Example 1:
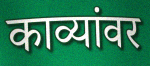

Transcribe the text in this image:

काव्यांवर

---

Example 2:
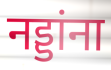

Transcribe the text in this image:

नड्डांना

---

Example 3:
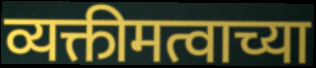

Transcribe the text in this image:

व्यक्तीमत्वाच्या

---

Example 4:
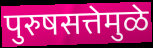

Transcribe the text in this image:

पुरुषसत्तेमुळे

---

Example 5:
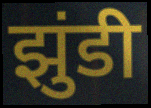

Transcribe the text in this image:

झुंडी